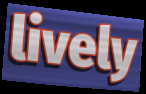
lively